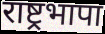
राष्ट्रभापा